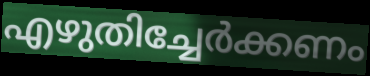
എഴുതിച്ചേർക്കണം